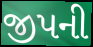
જીપની